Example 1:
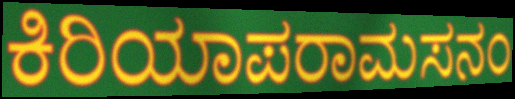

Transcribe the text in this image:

ಕಿರಿಯಾಪರಾಮಸನಂ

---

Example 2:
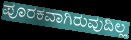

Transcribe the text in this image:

ಪೂರಕವಾಗಿರುವುದಿಲ್ಲ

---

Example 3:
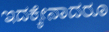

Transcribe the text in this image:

ಇದಕ್ಕೇನಾದರೂ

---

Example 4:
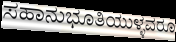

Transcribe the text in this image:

ಸಹಾನುಭೂತಿಯುಳ್ಳವರೂ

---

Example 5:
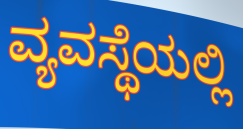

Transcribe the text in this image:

ವ್ಯವಸ್ಥೆಯಲ್ಲಿ